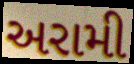
અરામી